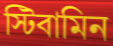
স্টিবামিন